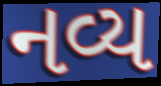
નવ્ય